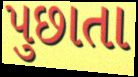
પુછાતા